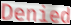
Denied